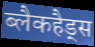
ब्लैकहैड्स